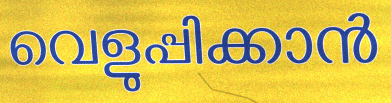
വെളുപ്പിക്കാൻ